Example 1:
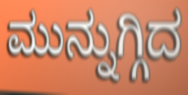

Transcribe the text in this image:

ಮುನ್ನುಗ್ಗಿದ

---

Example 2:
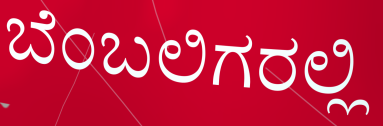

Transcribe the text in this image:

ಬೆಂಬಲಿಗರಲ್ಲಿ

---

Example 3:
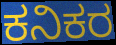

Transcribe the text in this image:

ಕನಿಕರ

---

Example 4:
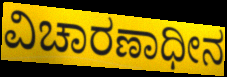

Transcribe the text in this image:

ವಿಚಾರಣಾಧೀನ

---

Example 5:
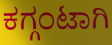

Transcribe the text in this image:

ಕಗ್ಗಂಟಾಗಿ